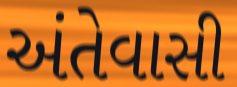
અંતેવાસી